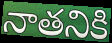
నాతనికి